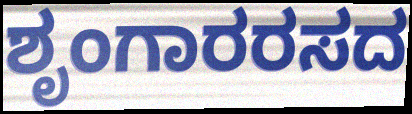
ಶೃಂಗಾರರಸದ